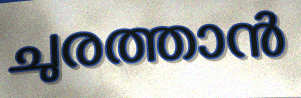
ചുരത്താൻ